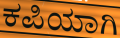
ಕಪಿಯಾಗಿ